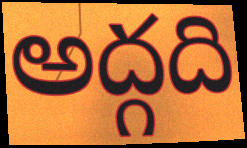
అద్గది